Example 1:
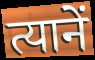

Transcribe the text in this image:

त्यानें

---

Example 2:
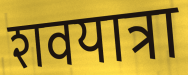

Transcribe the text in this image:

शवयात्रा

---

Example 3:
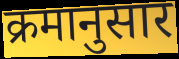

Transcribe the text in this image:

क्रमानुसार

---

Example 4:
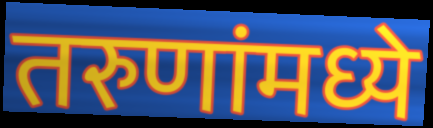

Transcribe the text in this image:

तरुणांमध्ये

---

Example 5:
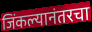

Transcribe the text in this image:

जिंकल्यानंतरचा